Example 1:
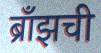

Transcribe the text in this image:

ब्राँझची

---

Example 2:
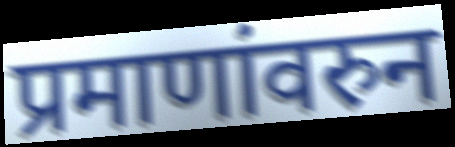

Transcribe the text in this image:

प्रमाणांवरुन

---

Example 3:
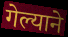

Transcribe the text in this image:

गेल्याने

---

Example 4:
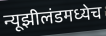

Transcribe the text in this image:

न्यूझीलंडमध्येच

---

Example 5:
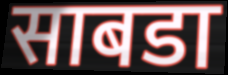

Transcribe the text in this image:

साबडा